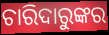
ଚାରିଦାରୁଙ୍କର